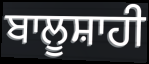
ਬਾਲੂਸ਼ਾਹੀ